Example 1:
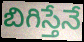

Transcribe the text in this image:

బిగిస్తేనే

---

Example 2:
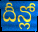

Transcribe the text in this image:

దీన్లో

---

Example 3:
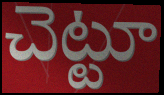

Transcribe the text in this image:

చెట్టూ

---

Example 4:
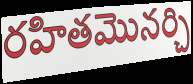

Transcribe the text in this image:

రహితమొనర్చి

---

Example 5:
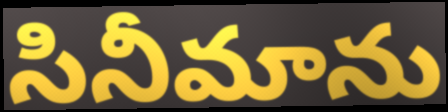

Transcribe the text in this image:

సినీమాను